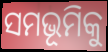
ସମଭୂମିକୁ